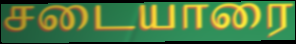
சடையாரை